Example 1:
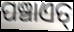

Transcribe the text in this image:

ପଞ୍ଚାଏତ୍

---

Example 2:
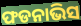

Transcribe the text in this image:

ଫଡନାଭିସ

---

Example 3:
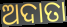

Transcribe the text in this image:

ଅଦାତା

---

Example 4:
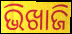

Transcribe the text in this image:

ଭିଖାଜି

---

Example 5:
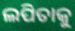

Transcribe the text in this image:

ଲପିତାକୁ